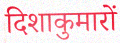
दिशाकुमारों